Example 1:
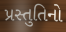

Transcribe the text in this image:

પ્રસ્તુતિનો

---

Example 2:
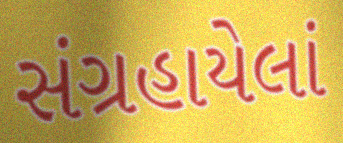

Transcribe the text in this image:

સંગ્રહાયેલાં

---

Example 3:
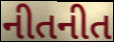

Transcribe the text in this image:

નીતનીત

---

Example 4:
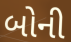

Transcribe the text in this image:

બોની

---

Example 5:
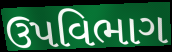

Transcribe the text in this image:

ઉપવિભાગ